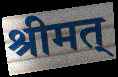
श्रीमत्